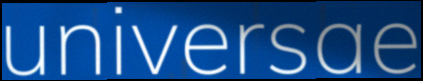
universae